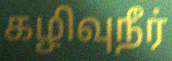
கழிவுநீர்